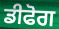
ਡੀਫੋਗ